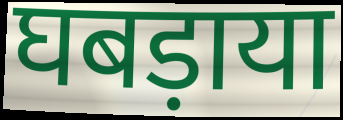
घबड़ाया